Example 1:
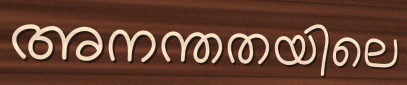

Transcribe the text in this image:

അനന്തതയിലെ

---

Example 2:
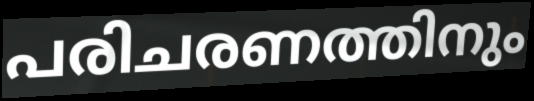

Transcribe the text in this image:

പരിചരണത്തിനും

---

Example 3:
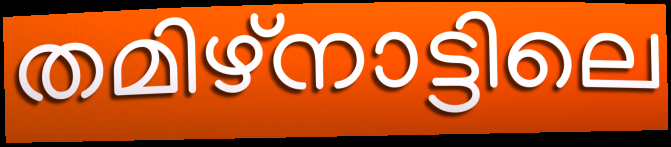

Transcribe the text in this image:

തമിഴ്നാട്ടിലെ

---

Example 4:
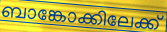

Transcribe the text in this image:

ബാങ്കോക്കിലേക്ക്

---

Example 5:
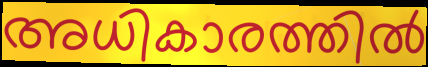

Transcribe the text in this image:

അധികാരത്തിൽ